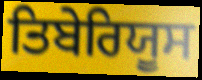
ਤਿਬੇਰਿਯੂਸ